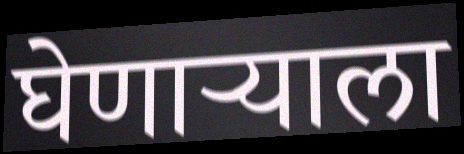
घेणार्‍याला